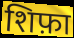
शिफ़ा